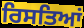
ਰਿਸਤਿਆਂ